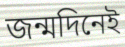
জন্মদিনেই